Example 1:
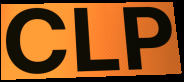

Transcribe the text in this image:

CLP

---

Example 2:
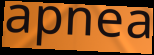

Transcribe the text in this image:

apnea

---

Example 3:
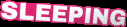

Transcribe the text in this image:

SLEEPING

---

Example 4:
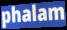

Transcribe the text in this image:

phalam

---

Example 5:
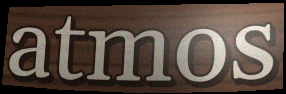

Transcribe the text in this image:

atmos